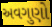
અવગુણો